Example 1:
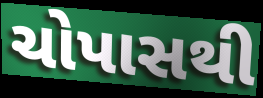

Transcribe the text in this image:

ચોપાસથી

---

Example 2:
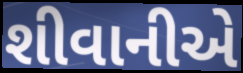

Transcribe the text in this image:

શીવાનીએ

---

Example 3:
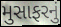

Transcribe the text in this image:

મુસાફરનું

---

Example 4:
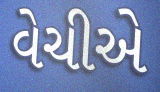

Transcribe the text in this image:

વેચીએ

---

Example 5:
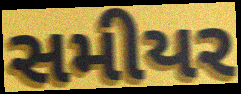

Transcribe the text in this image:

સમીયર